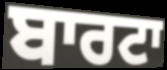
ਬਾਰਟਾ